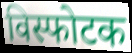
विस्फोटक